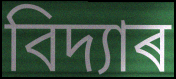
বিদ্যাৰ